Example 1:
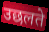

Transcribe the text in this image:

उछलते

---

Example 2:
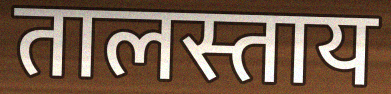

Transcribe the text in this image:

तालस्ताय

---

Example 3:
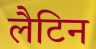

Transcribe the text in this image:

लैटिन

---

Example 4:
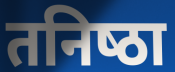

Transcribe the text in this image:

तनिष्‍ठा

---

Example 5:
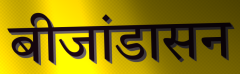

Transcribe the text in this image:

बीजांडासन